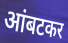
आंबटकर